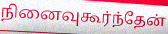
நினைவுகூர்ந்தேன்